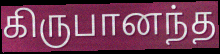
கிருபானந்த